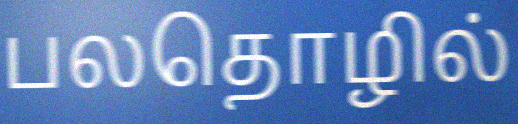
பலதொழில்